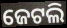
ଜେଟଲି